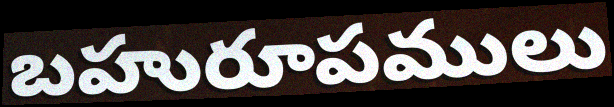
బహురూపములు